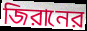
জিরানের